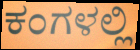
ಕಂಗಳಲ್ಲಿ